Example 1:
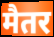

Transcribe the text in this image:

मैतर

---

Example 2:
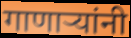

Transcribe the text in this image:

गाणाऱ्यांनी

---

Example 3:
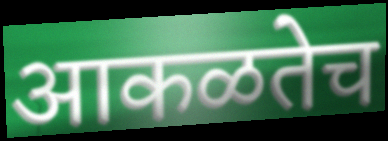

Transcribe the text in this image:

आकळतेच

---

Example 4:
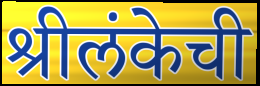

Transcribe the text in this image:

श्रीलंकेची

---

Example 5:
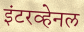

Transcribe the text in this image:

इंटरव्हेनल